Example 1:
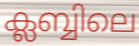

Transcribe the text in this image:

ക്ലബ്ബിലെ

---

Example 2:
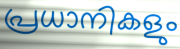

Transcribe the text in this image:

പ്രധാനികളും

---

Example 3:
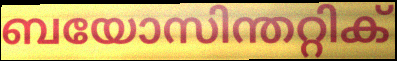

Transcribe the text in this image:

ബയോസിന്തറ്റിക്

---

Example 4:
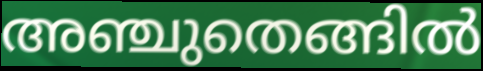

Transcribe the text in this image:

അഞ്ചുതെങ്ങിൽ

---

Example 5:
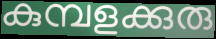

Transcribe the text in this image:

കുമ്പളക്കുരു